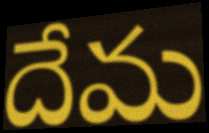
దేమ